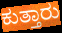
ಕುತ್ತಾರು